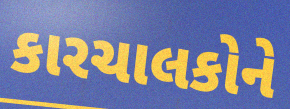
કારચાલકોને